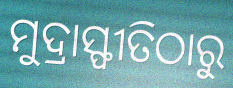
ମୁଦ୍ରାସ୍ଫୀତିଠାରୁ